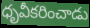
ధృవీకరించాడు